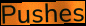
Pushes